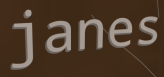
janes